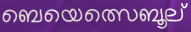
ബെയെത്സെബൂല്